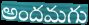
అందమగు